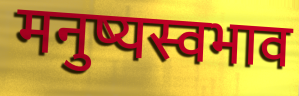
मनुष्यस्वभाव